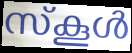
സ്‌കൂൾ